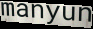
manyun